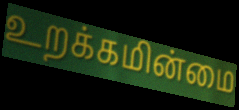
உறக்கமின்மை